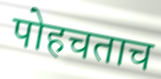
पोहचताच